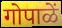
गोपाळें